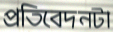
প্রতিবেদনটা